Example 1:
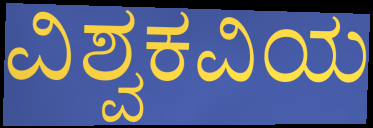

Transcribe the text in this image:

ವಿಶ್ವಕವಿಯ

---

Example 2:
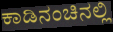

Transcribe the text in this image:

ಕಾಡಿನಂಚಿನಲ್ಲಿ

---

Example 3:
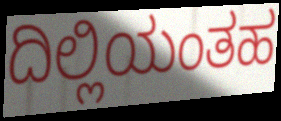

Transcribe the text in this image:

ದಿಲ್ಲಿಯಂತಹ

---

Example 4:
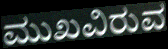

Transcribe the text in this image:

ಮುಖವಿರುವ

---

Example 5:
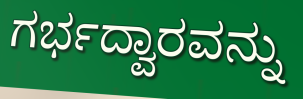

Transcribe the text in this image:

ಗರ್ಭದ್ವಾರವನ್ನು